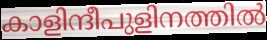
കാളിന്ദീപുളിനത്തിൽ